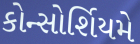
કોન્સોર્શિયમે